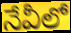
నేవీలో